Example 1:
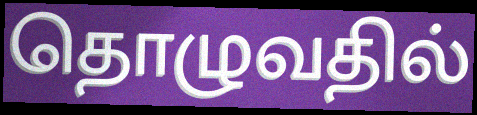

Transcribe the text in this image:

தொழுவதில்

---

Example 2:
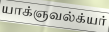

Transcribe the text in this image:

யாக்ஞவல்க்யர்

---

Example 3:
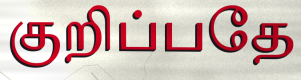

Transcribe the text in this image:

குறிப்பதே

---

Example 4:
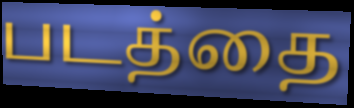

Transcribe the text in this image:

படத்தை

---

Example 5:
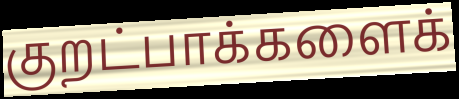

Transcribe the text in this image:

குறட்பாக்களைக்